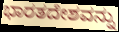
ಭಾರತದೇಶವನ್ನು